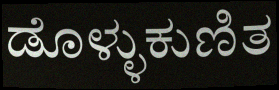
ಡೊಳ್ಳುಕುಣಿತ